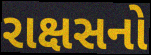
રાક્ષસનો